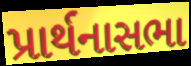
પ્રાર્થનાસભા